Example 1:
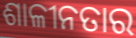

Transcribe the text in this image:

ଶାଳୀନତାର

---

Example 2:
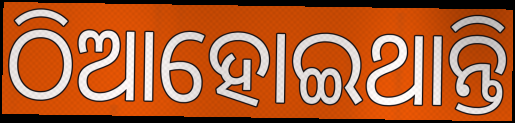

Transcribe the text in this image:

ଠିଆହୋଇଥାନ୍ତି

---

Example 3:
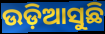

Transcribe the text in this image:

ଉଡ଼ିଆସୁଛି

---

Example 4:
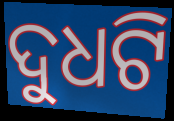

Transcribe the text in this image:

ଦୁଧଟି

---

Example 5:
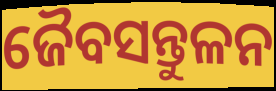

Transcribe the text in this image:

ଜୈବସନ୍ତୁଳନ